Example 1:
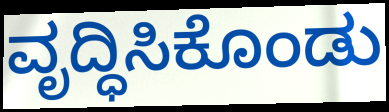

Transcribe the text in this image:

ವೃದ್ಧಿಸಿಕೊಂಡು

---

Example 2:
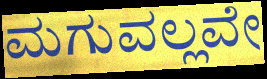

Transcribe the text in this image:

ಮಗುವಲ್ಲವೇ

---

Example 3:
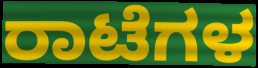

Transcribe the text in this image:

ರಾಟೆಗಳ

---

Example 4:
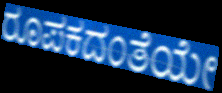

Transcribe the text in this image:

ರೂಪಕದಂತೆಯೇ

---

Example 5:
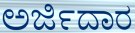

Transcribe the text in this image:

ಅರ್ಜಿದಾರ